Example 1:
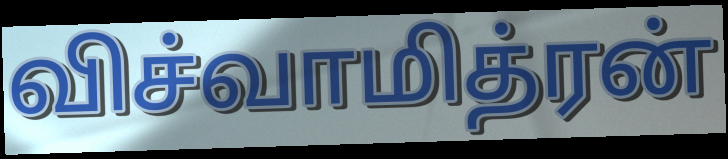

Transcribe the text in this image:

விச்வாமித்ரன்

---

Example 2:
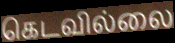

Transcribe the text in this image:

கெடவில்லை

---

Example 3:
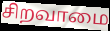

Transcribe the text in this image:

சிறவாமை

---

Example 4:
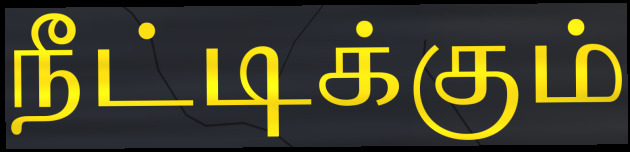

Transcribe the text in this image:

நீட்டிக்கும்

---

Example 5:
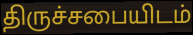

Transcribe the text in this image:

திருச்சபையிடம்